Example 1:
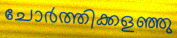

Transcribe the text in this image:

ചോർത്തിക്കളഞ്ഞു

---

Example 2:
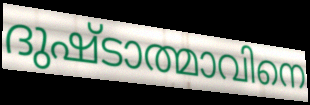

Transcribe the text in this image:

ദുഷ്ടാത്മാവിനെ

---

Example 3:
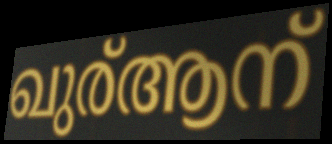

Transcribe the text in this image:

ഖുര്ആന്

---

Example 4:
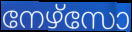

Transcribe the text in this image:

നേഴ്സോ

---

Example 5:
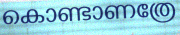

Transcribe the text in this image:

കൊണ്ടാണത്രേ